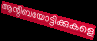
ആന്റിബയോട്ടിക്കുകളെ